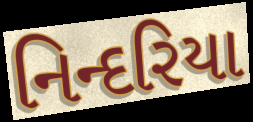
નિન્દરિયા